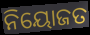
ନିୟୋଜତ